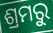
ଶ୍ରମରୁ